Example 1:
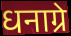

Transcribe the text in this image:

धनाग्रे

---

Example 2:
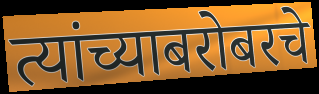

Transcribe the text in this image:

त्यांच्याबरोबरचे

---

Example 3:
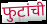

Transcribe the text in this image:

फुटांची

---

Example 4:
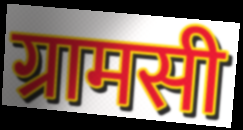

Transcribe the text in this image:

ग्रामसी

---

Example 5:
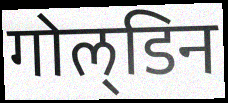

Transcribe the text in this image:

गोल्डिन